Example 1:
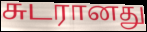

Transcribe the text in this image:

சுடரானது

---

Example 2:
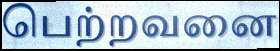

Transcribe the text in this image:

பெற்றவனை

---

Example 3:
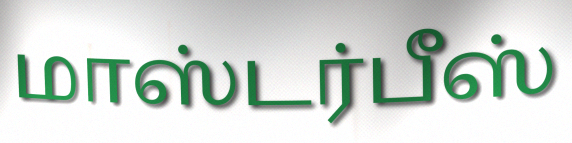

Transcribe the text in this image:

மாஸ்டர்பீஸ்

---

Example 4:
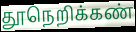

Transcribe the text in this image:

தூநெறிக்கண்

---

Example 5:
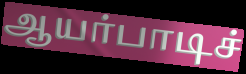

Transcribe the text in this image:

ஆயர்பாடிச்